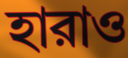
হারাও